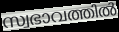
സ്വഭാവത്തിൽ